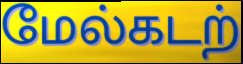
மேல்கடற்